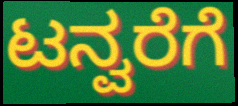
ಟನ್ವರೆಗೆ